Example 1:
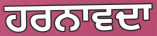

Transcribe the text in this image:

ਹਰਨਾਵਦਾ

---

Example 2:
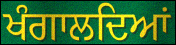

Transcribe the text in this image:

ਖੰਗਾਲਦਿਆਂ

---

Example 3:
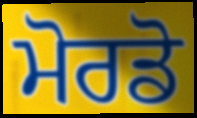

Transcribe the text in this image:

ਮੋਰਡੋ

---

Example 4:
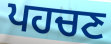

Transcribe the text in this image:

ਪਹਚਣ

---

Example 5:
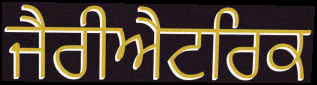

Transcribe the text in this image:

ਜੈਰੀਐਟਰਿਕ